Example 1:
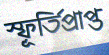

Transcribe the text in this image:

স্ফূর্তিপ্রাপ্ত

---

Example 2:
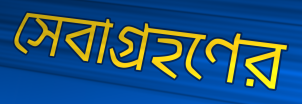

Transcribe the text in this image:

সেবাগ্রহণের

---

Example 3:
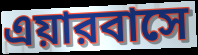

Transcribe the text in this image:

এয়ারবাসে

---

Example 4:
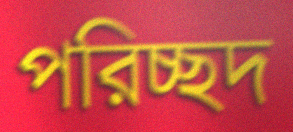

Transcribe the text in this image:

পরিচ্ছদ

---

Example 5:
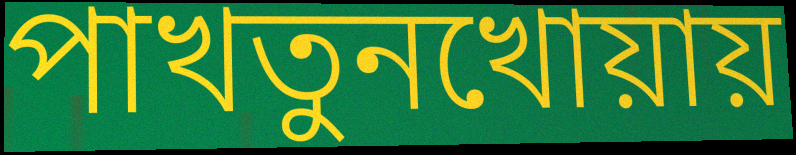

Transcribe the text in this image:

পাখতুনখোয়ায়